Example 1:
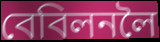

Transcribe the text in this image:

বেবিলনলৈ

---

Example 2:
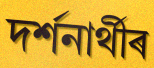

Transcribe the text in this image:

দৰ্শনাৰ্থীৰ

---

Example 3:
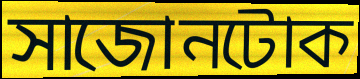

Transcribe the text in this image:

সাজোনটোক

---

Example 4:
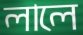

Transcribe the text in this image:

লালে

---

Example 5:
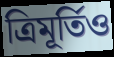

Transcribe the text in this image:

ত্ৰিমূৰ্তিও